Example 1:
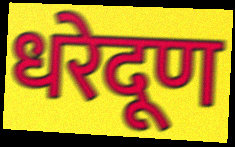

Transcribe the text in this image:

धरेदूण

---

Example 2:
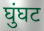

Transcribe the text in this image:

घुंघट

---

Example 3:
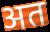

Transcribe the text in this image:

अत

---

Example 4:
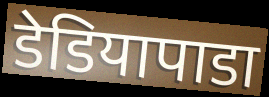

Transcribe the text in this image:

डेडियापाडा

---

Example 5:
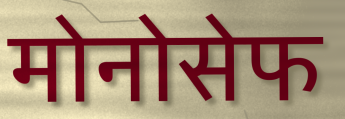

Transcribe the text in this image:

मोनोसेफ